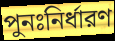
পুনঃনির্ধারণ